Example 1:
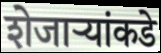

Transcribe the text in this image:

शेजाऱ्यांकडे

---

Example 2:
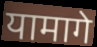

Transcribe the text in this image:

यामागे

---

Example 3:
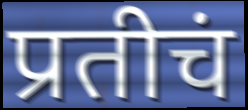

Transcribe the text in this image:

प्रतीचं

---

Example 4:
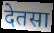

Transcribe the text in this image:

देतसा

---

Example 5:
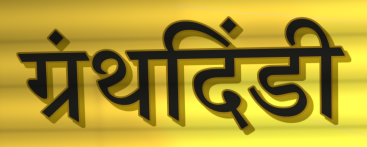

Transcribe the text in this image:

ग्रंथदिंडी